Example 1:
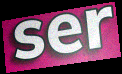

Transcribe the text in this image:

ser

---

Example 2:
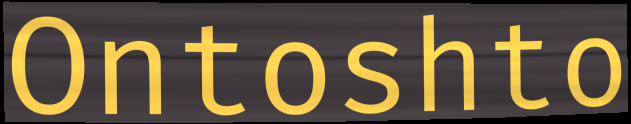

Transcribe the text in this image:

Ontoshto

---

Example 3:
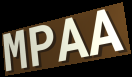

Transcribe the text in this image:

MPAA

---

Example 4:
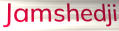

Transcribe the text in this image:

Jamshedji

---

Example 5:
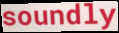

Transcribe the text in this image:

soundly